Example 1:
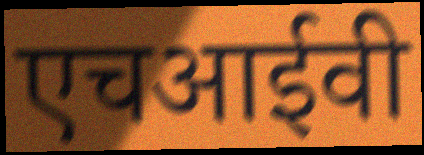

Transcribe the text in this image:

एचआईवी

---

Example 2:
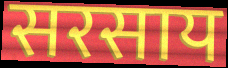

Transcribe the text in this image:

सरसाय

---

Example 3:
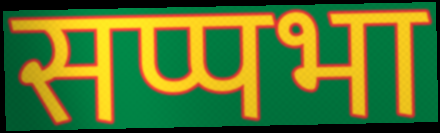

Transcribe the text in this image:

सप्पभा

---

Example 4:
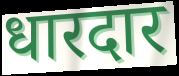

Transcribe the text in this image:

धारदार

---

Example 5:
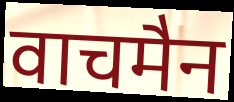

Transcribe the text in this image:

वाचमैन